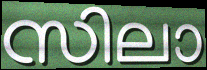
സിലാ